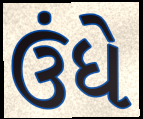
ઉંધે